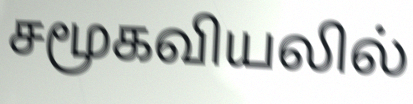
சமூகவியலில்